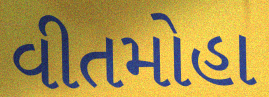
વીતમોહા